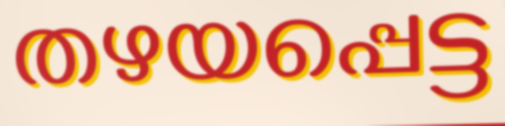
തഴയപ്പെട്ട